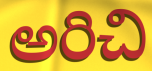
అరిచి